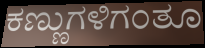
ಕಣ್ಣುಗಳಿಗಂತೂ